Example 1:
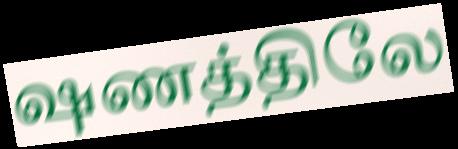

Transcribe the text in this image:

ஷணத்திலே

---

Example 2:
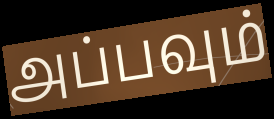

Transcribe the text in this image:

அப்பவும்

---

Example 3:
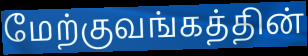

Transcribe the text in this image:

மேற்குவங்கத்தின்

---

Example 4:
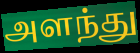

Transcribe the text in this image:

அளந்து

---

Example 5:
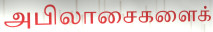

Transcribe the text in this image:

அபிலாசைகளைக்